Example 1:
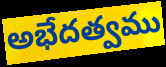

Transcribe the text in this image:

అభేదత్వము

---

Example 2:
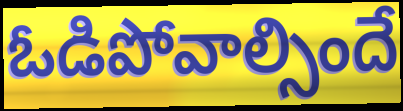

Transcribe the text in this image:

ఓడిపోవాల్సిందే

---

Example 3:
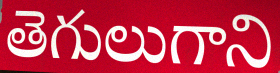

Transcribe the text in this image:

తెగులుగాని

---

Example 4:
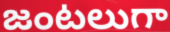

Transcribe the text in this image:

జంటలుగా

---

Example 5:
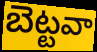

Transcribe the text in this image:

బెట్టవా